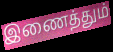
இணைத்தும்